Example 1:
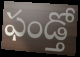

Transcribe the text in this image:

ఫండ్తో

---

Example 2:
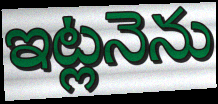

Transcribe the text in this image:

ఇట్లనెను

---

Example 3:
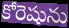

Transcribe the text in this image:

కోరెషును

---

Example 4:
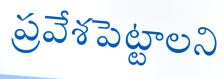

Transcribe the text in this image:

ప్రవేశపెట్టాలని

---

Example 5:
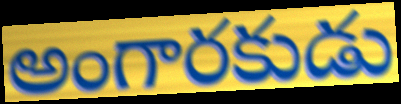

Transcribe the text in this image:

అంగారకుడు